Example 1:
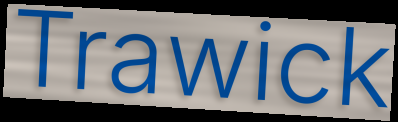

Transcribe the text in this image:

Trawick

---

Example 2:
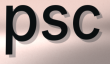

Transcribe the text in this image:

psc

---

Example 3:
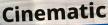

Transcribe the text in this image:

Cinematic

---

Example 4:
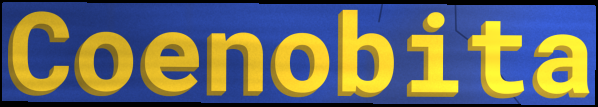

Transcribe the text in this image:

Coenobita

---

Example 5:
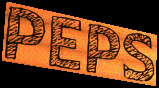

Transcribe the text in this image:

PEPS